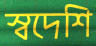
স্বদেশি